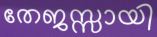
തേജസ്സായി